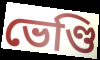
ভেণ্ডি